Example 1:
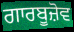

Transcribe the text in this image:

ਗਾਰਬੂਜ਼ੋਵ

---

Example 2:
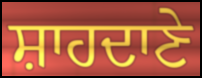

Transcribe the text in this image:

ਸ਼ਾਹਦਾਣੇ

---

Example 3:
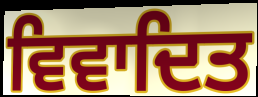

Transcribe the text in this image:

ਵਿਵਾਦਿਤ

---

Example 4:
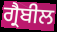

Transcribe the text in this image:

ਗ੍ਰੈਬੀਲ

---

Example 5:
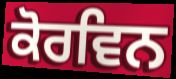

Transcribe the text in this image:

ਕੋਰਵਿਨ